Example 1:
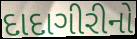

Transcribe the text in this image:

દાદાગીરીનો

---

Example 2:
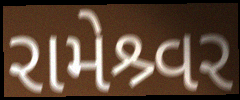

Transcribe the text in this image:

રામેશ્ર્વર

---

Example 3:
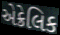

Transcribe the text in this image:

એક્રેલિક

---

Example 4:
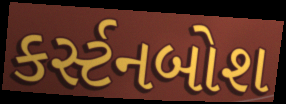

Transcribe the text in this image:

કર્સ્ટનબોશ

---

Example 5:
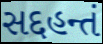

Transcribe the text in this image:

સદ્દહન્તં